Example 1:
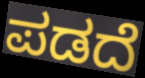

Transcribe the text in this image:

ಪಡದೆ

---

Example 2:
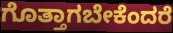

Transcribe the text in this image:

ಗೊತ್ತಾಗಬೇಕೆಂದರೆ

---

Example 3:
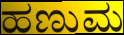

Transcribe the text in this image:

ಹಣುಮ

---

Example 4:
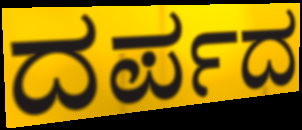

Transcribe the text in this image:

ದರ್ಪದ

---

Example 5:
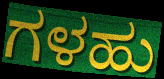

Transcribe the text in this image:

ಗಳಹು